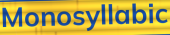
Monosyllabic